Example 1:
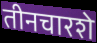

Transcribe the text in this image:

तीनचारशे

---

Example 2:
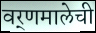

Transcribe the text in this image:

वर्णमालेची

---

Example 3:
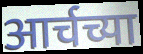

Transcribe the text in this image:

आर्चच्या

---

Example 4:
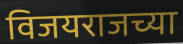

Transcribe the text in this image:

विजयराजच्या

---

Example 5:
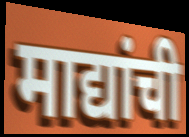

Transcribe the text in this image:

माद्यांची